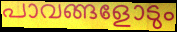
പാവങ്ങളോടും